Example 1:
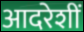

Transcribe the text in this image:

आदरेशीं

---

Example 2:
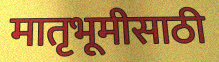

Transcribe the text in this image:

मातृभूमीसाठी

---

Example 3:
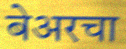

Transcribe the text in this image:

बेअरचा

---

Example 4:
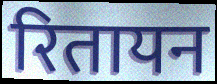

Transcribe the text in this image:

रितायन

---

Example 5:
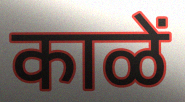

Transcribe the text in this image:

काळें